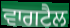
ਵਾਗਟੈਲ